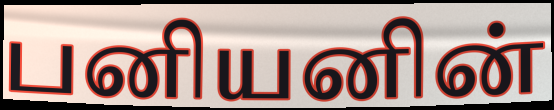
பனியனின்